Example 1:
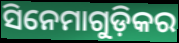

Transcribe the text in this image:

ସିନେମାଗୁଡ଼ିକର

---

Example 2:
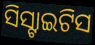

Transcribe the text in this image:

ସିସ୍ଟାଇଟିସ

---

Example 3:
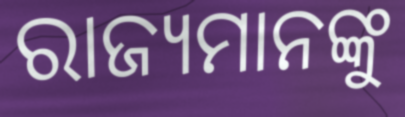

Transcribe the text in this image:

ରାଜ୍ଯମାନଙ୍କୁ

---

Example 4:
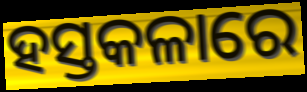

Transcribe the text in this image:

ହସ୍ତକଳାରେ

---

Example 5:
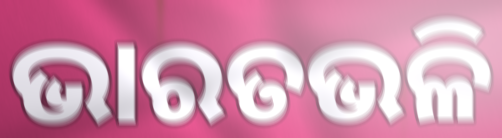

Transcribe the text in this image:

ଭାରତଭଳି